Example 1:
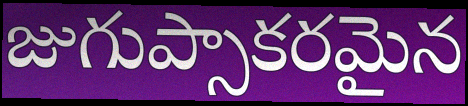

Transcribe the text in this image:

జుగుప్సాకరమైన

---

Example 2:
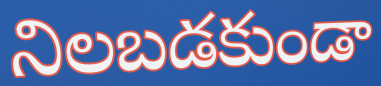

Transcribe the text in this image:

నిలబడకుండా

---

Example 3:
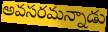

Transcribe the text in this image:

అవసరమన్నాడు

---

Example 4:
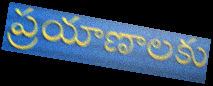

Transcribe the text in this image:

ప్రయాణాలకు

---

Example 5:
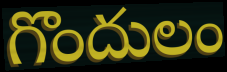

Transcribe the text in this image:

గొందులం